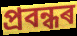
প্ৰবন্ধৰ